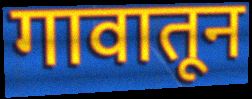
गावातून